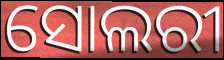
ସୋଲରୀ